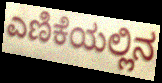
ಎಣಿಕೆಯಲ್ಲಿನ